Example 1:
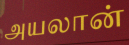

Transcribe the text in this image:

அயலான்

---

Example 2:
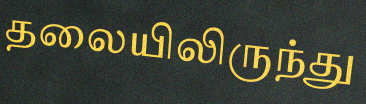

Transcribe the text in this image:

தலையிலிருந்து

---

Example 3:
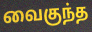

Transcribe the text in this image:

வைகுந்த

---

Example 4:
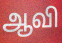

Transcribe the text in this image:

ஆவி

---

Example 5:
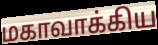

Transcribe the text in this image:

மகாவாக்கிய